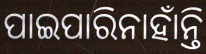
ପାଇପାରିନାହାଁନ୍ତି